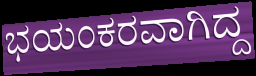
ಭಯಂಕರವಾಗಿದ್ದ